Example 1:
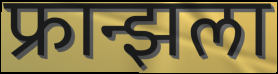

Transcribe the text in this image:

फ्रान्झला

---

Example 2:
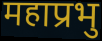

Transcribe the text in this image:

महाप्रभु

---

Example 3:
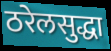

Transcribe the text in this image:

ठरेलसुद्धा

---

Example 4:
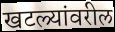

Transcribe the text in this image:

खटल्यांवरील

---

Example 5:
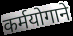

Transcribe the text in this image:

कर्मयोगाने